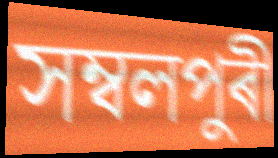
সম্বলপুৰী